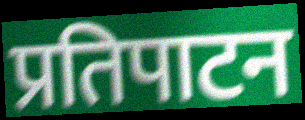
प्रतिपाटन